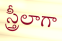
స్త్రీలాగా